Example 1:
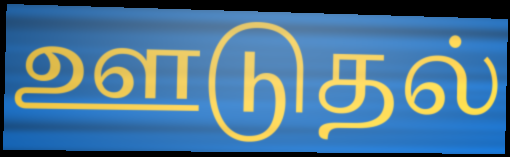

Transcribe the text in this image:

ஊடுதல்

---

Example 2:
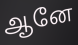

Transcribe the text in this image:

ஆனே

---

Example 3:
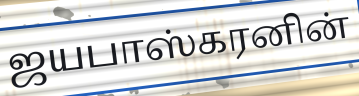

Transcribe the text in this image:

ஜயபாஸ்கரனின்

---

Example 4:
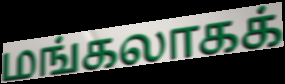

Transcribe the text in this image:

மங்கலாகக்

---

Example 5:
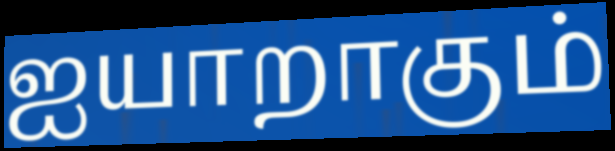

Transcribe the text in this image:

ஐயாறாகும்